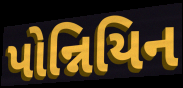
પોન્નિયિન